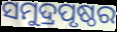
ସମୁଦ୍ରପୃଷ୍ଠର